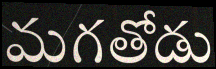
మగతోడు